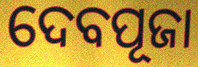
ଦେବପୂଜା